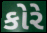
કોરે